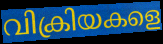
വിക്രിയകളെ